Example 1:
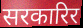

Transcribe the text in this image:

सरकारिर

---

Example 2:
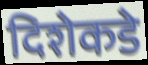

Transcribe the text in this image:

दिशेकडे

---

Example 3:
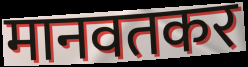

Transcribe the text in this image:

मानवतकर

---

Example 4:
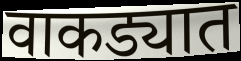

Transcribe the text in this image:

वाकड्यात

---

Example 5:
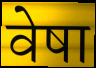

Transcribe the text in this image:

वेषा